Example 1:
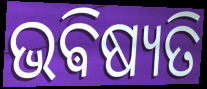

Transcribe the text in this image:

ଭଵିଷ୍ୟତି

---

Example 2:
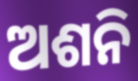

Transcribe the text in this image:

ଅଶନି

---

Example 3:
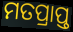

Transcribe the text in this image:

ମତପ୍ରାପ୍ତ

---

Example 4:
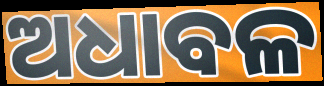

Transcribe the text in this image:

ଅଧାବଳ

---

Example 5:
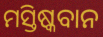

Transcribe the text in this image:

ମସ୍ତିଷ୍କବାନ